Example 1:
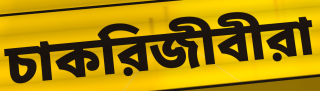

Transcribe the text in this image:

চাকরিজীবীরা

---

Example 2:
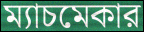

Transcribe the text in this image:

ম্যাচমেকার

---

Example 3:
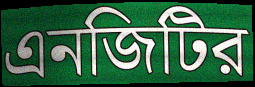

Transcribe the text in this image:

এনজিটির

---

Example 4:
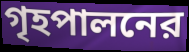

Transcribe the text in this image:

গৃহপালনের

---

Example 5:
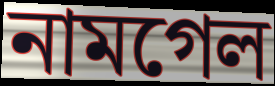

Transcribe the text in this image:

নামগেল